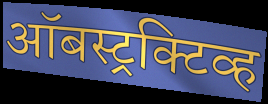
ऑबस्ट्रक्टिव्ह